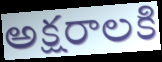
అక్షరాలకి